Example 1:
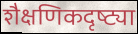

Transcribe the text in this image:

शैक्षणिकदृष्ट्या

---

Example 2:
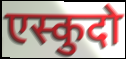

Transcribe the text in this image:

एस्कुदो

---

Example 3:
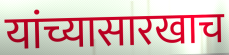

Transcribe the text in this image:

यांच्यासारखाच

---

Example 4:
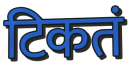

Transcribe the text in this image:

टिकतं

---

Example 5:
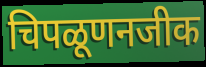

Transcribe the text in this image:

चिपळूणनजीक